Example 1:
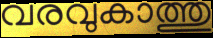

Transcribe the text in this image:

വരവുകാത്തു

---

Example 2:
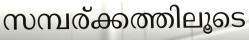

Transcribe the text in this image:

സമ്പര്ക്കത്തിലൂടെ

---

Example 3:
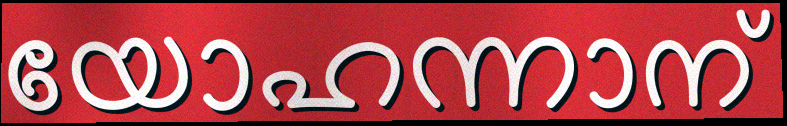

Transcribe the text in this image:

യോഹന്നാന്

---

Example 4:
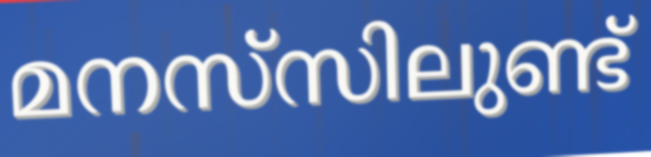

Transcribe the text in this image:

മനസ്‌സിലുണ്ട്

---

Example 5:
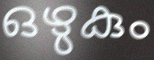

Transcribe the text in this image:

ഒഴുകും